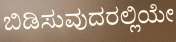
ಬಿಡಿಸುವುದರಲ್ಲಿಯೇ